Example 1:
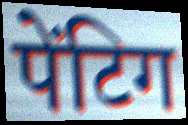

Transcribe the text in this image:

पेंटिग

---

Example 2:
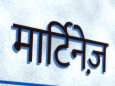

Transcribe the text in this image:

मार्टिनेज़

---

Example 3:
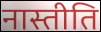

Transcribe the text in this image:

नास्तीति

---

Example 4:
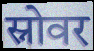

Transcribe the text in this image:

स्नोवर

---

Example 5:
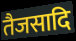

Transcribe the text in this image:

तैजसादि